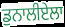
ਡੁਨਾਲੀਏਲਾ